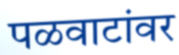
पळवाटांवर